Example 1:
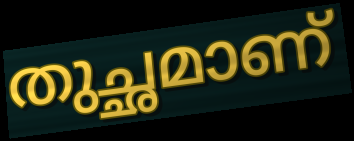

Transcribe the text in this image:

തുച്ഛമാണ്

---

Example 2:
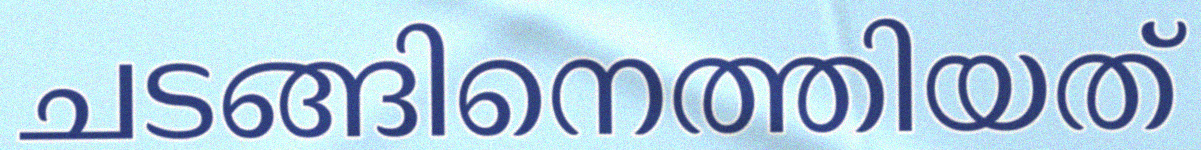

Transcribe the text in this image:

ചടങ്ങിനെത്തിയത്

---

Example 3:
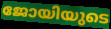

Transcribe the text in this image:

ജോയിയുടെ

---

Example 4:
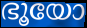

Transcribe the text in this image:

ഭൂയോ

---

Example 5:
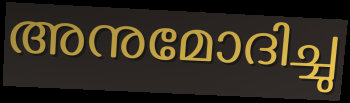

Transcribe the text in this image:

അനുമോദിച്ചു